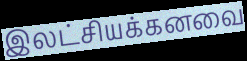
இலட்சியக்கனவை